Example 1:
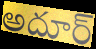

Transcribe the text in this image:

అదూర్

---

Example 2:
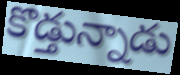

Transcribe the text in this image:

కొడ్తున్నాడు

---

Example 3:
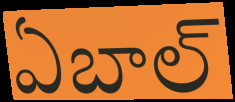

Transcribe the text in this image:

ఏబాల్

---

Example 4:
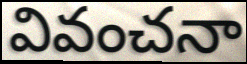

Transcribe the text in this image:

వివంచనా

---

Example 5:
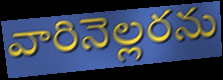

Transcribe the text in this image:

వారినెల్లరను